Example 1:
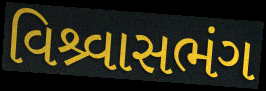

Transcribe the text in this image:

વિશ્ર્વાસભંગ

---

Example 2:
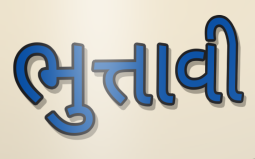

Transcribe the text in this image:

ભુત્તાવી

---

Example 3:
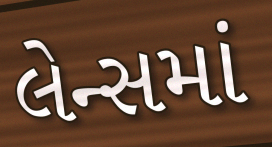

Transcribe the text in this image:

લેન્સમાં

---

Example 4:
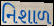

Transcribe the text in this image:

નિશાળ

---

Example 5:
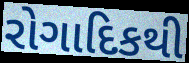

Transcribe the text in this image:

રોગાદિકથી